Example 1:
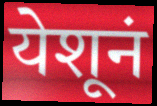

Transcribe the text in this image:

येशूनं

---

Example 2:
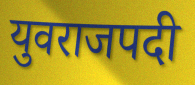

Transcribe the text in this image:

युवराजपदी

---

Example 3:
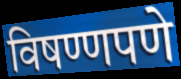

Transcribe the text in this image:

विषण्णपणे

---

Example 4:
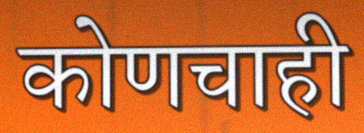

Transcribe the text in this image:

कोणचाही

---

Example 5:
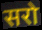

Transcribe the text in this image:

सरो